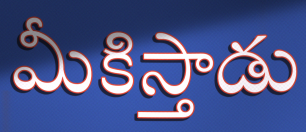
మీకిస్తాడు